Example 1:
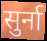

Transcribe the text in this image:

सुर्ना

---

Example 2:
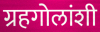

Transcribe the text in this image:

ग्रहगोलांशी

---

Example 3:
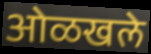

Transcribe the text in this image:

ओळखले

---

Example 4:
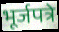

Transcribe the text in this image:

भूर्जपत्रे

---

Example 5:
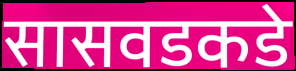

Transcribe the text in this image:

सासवडकडे